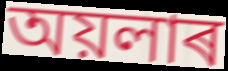
অয়লাৰ